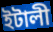
ইটালী